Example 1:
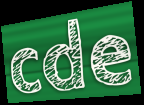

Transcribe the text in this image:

cde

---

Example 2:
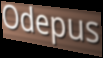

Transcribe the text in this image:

Odepus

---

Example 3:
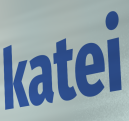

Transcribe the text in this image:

katei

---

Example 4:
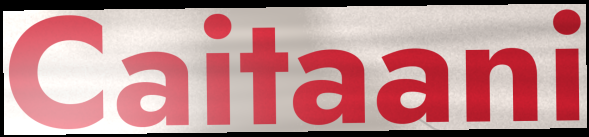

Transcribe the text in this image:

Caitaani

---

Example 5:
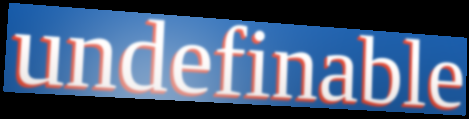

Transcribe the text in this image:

undefinable